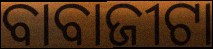
ବାବାଜୀଟା